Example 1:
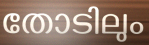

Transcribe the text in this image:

തോടിലും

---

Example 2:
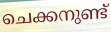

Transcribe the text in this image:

ചെക്കനുണ്ട്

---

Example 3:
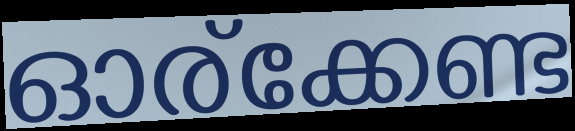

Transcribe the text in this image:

ഓര്ക്കേണ്ട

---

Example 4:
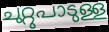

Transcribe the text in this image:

ചുറ്റുപാടുള്ള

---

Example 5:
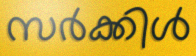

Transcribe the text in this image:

സർക്കിൾ